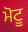
ਮੋਟੂ